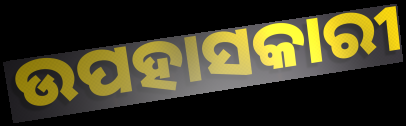
ଉପହାସକାରୀ